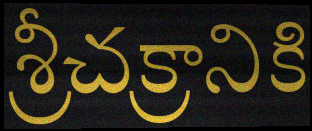
శ్రీచక్రానికి